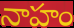
నాహం